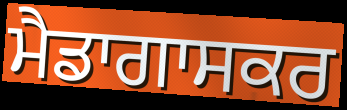
ਮੈਡਾਗਾਸਕਰ